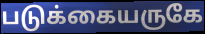
படுக்கையருகே